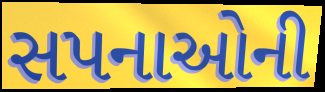
સપનાઓની